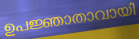
ഉപജ്ഞാതാവായി